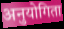
अनुयोगिता